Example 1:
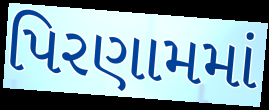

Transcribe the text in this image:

પિરણામમાં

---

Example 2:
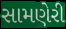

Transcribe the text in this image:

સામણેરી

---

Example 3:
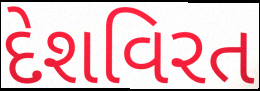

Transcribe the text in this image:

દેશવિરત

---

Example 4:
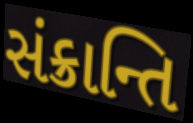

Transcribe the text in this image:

સંક્રાન્તિ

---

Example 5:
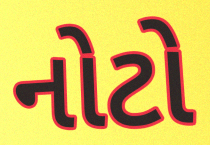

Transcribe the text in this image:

નોટો